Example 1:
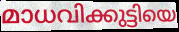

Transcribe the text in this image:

മാധവിക്കുട്ടിയെ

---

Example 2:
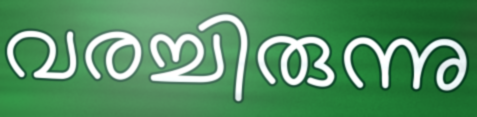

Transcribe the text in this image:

വരച്ചിരുന്നു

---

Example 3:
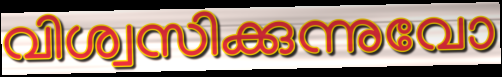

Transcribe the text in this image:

വിശ്വസിക്കുന്നുവോ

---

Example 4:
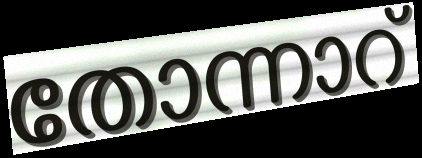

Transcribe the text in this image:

തോന്നാറ്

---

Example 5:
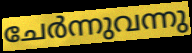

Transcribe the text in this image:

ചേർന്നുവന്നു